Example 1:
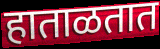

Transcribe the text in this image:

हाताळतात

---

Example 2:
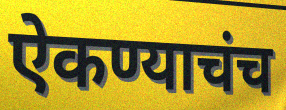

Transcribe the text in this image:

ऐकण्याचंच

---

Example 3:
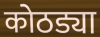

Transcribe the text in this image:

कोठड्या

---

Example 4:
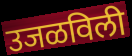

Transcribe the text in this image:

उजळविली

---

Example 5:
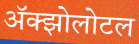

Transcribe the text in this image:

ॲक्झोलोटल